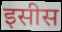
इसीस